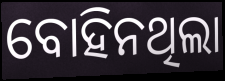
ବୋହିନଥିଲା